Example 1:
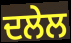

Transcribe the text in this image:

ਦਲੇਲ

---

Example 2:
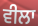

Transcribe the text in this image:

ਵੀਲਾ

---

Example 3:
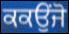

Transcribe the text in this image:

ਕਕਉਂਜੋ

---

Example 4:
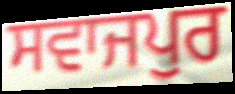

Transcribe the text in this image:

ਸਵਾਜਪੁਰ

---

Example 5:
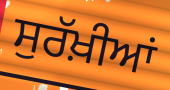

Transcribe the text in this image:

ਸੁਰੱਖ਼ੀਆਂ